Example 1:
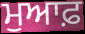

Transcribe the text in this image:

ਮੁਆਫ਼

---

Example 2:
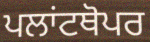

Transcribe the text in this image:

ਪਲਾਂਟਥੋਪਰ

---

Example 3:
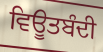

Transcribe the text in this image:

ਵਿਊਤਬੰਦੀ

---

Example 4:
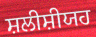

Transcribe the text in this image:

ਸ਼ਲੀਸ਼ੀਯਹ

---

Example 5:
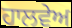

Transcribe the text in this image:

ਹਾਲਵੇਅ